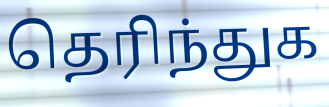
தெரிந்துக